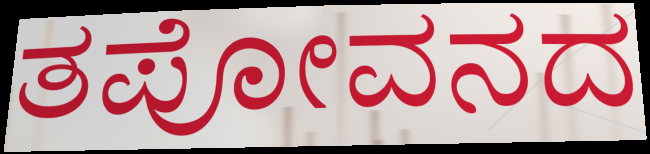
ತಪೋವನದ